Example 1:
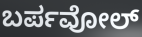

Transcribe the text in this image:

ಬರ್ಪವೋಲ್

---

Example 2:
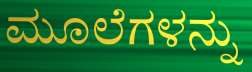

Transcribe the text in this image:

ಮೂಲೆಗಳನ್ನು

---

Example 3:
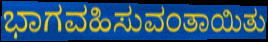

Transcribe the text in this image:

ಭಾಗವಹಿಸುವಂತಾಯಿತು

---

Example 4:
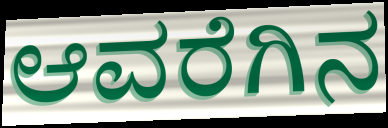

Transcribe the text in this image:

ಆವರೆಗಿನ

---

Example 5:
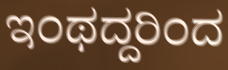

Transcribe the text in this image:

ಇಂಥದ್ದರಿಂದ